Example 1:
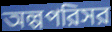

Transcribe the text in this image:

অল্পপরিসর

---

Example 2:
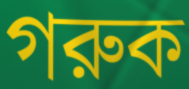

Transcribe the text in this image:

গরুক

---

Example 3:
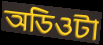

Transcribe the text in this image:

অডিওটা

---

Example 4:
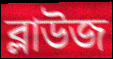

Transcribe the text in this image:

ব্লাউজ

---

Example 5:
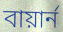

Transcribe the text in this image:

বায়ার্ন